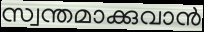
സ്വന്തമാക്കുവാൻ